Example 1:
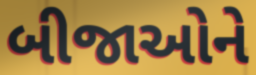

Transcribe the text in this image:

બીજાઓને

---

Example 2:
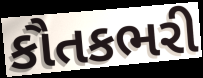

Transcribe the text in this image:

કૌતકભરી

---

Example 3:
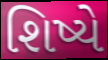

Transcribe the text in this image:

શિષ્યે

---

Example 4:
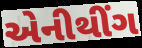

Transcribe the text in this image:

એનીથીંગ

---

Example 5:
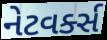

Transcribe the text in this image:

નેટવર્ક્સ